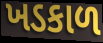
ખડકાળ